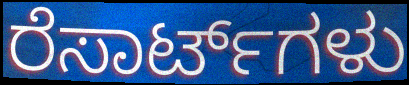
ರೆಸಾರ್ಟ್‌ಗಳು